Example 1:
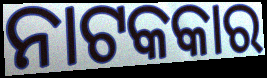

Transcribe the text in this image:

ନାଟକକାର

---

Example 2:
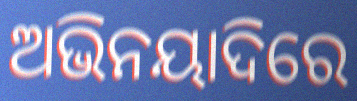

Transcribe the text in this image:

ଅଭିନୟାଦିରେ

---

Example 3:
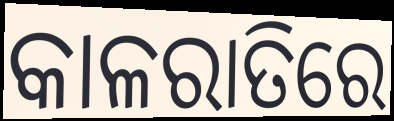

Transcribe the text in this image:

କାଳରାତିରେ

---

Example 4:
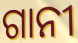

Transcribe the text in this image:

ଗାନୀ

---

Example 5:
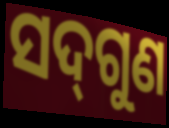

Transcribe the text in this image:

ସଦ୍‌ଗୁଣ